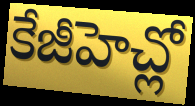
కేజీహెచ్లో